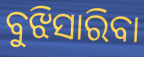
ବୁଝିସାରିବା